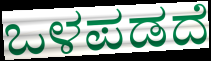
ಒಳಪಡದೆ